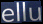
ellu